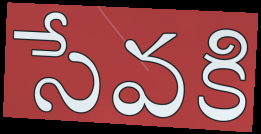
సేవకి